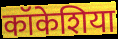
कॉकेशिया